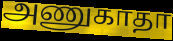
அணுகாதா